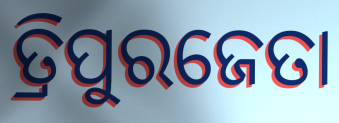
ତ୍ରିପୁରଜେତା